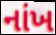
નાંખ